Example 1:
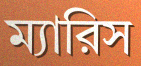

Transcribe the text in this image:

ম্যারিস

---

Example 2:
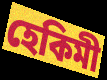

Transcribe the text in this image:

হেকিমী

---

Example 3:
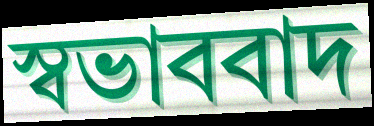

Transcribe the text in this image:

স্বভাববাদ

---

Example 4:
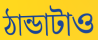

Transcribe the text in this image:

ঠান্ডাটাও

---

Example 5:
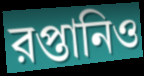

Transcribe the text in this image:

রপ্তানিও